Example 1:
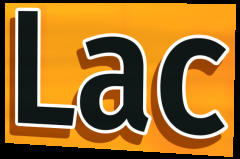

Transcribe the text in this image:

Lac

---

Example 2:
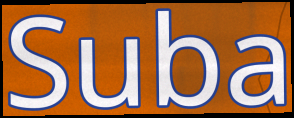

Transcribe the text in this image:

Suba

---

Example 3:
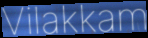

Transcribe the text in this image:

Vilakkam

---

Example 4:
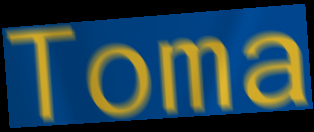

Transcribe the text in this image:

Toma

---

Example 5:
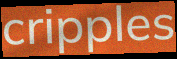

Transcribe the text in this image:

cripples